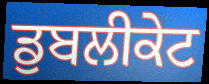
ਡੁਬਲੀਕੇਟ